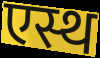
एस्थ